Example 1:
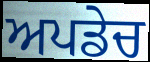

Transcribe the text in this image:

ਅਪਡੇਚ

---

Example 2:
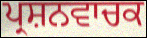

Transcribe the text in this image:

ਪ੍ਰਸ਼ਨਵਾਚਕ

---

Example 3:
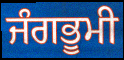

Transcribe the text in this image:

ਜੰਗਭੂਮੀ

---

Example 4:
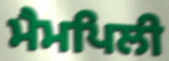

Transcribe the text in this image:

ਮੈਮਪਿਲੀ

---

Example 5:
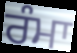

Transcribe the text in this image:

ਰੰਮਾ